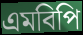
এমবিপি